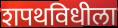
शपथविधीला